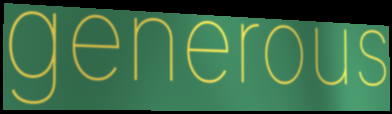
generous